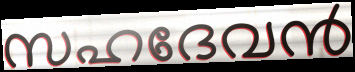
സഹദേവൻ